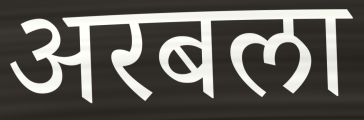
अरबला